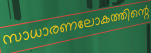
സാധാരണലോകത്തിന്റെ